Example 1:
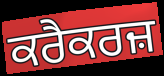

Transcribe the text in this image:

ਕਰੈਕਰਜ਼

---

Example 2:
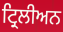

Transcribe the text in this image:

ਟ੍ਰਿਲੀਅਨ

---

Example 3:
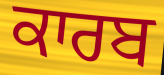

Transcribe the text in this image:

ਕਾਰਬ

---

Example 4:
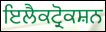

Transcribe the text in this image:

ਇਲੈਕਟ੍ਰੋਕਸ਼ਨ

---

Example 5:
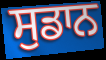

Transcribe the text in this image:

ਸੁਡਾਨ